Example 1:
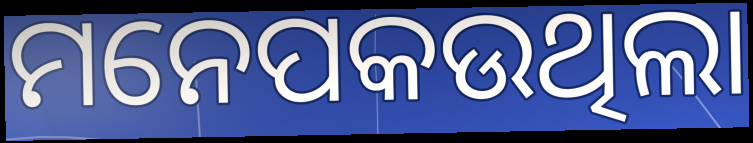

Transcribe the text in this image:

ମନେପକଉଥିଲା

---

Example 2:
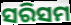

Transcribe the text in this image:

ସରିସମ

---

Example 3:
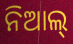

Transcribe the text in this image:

ନିଆଲ୍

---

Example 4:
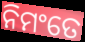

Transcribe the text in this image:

ନିମଂତେ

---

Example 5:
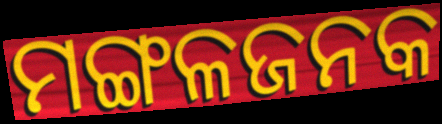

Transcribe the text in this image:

ମଙ୍ଗଳଜନକ